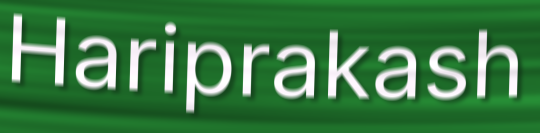
Hariprakash